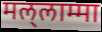
मल्लाम्मा